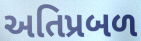
અતિપ્રબળ